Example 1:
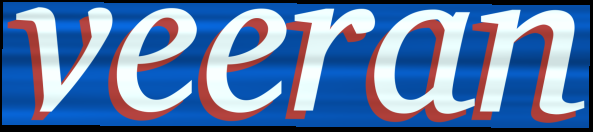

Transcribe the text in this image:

veeran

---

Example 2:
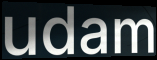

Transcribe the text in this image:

udam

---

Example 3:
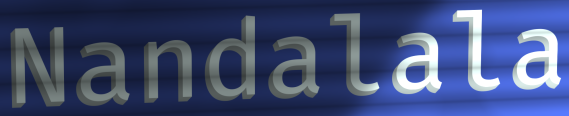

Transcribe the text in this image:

Nandalala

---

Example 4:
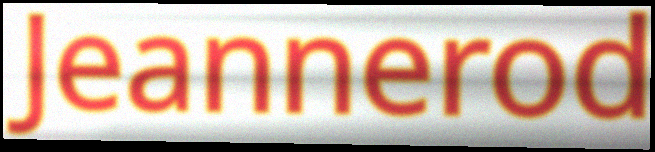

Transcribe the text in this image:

Jeannerod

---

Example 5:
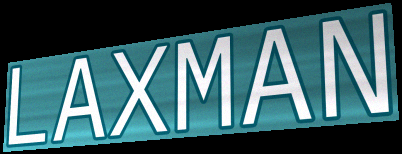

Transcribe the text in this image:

LAXMAN